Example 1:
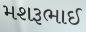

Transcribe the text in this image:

મશરૂભાઈ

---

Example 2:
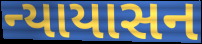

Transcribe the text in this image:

ન્યાયાસન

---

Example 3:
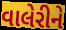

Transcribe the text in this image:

વાલેરીને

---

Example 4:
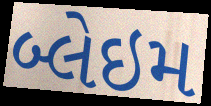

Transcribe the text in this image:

બ્લેઇમ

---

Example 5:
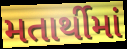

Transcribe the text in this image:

મતાર્થીમાં